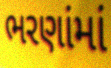
ભરણાંમાં